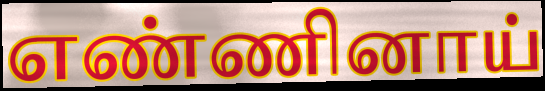
எண்ணினாய்